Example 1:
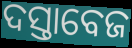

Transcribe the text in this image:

ଦସ୍ତାବେଜ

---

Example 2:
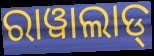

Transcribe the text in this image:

ରାୱାଲାଡ୍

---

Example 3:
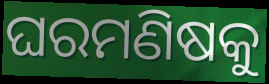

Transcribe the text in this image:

ଘରମଣିଷକୁ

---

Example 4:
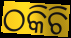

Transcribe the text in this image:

ଠକିଚି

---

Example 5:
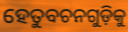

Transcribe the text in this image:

ହେତୁବଚନଗୁଡ଼ିକୁ